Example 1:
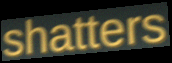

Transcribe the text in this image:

shatters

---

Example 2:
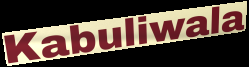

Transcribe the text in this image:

Kabuliwala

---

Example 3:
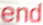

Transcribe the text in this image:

end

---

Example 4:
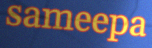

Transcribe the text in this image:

sameepa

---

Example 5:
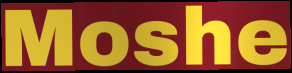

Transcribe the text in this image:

Moshe